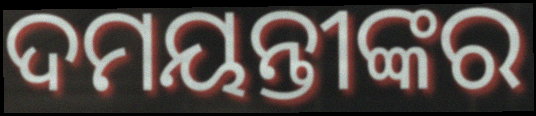
ଦମୟନ୍ତୀଙ୍କର